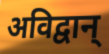
अविद्वान्